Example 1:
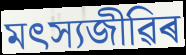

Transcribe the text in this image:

মৎস্যজীৱিৰ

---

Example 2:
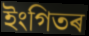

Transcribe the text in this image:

ইংগিতৰ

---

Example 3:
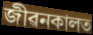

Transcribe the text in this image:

জীৱনকালত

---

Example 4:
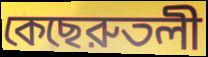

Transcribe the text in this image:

কেছেৰুতলী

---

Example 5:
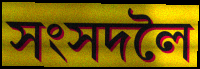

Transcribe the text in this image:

সংসদলৈ